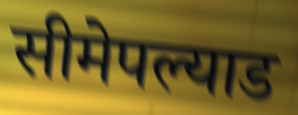
सीमेपल्याड